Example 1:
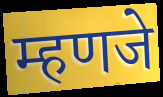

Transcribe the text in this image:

म्हणजे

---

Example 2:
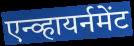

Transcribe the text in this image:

एन्व्हायर्नमेंट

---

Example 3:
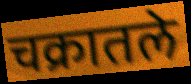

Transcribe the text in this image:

चक्रातले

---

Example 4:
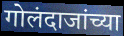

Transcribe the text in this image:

गोलंदाजांच्या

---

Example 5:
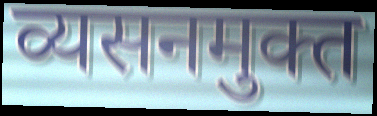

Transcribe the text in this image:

व्यसनमुक्त